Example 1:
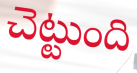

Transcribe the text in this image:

చెట్టుంది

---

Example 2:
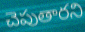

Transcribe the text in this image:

చెపుతారని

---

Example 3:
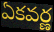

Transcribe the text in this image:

ఏకవర్ణ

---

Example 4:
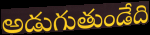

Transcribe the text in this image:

అడుగుతుండేది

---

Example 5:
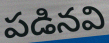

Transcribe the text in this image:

పడినవి